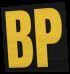
BP